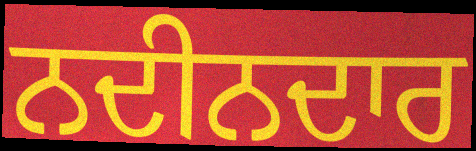
ਨਦੀਨਦਾਰ